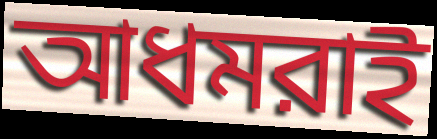
আধমরাই